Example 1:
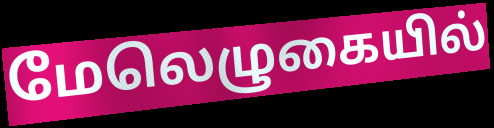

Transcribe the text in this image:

மேலெழுகையில்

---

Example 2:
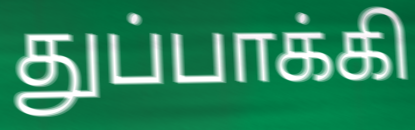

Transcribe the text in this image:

துப்பாக்கி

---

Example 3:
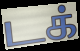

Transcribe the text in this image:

டக்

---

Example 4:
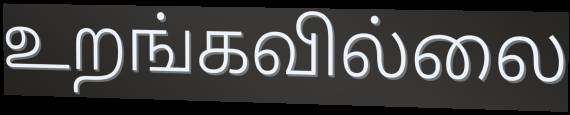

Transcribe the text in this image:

உறங்கவில்லை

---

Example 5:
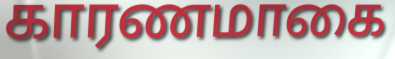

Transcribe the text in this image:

காரணமாகை